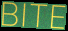
BITE